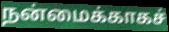
நன்மைக்காகச்